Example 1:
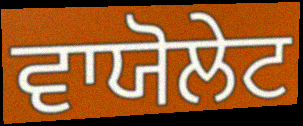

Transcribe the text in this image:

ਵਾਯੋਲੇਟ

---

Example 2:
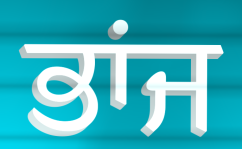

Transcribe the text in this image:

ਭਾਂਜ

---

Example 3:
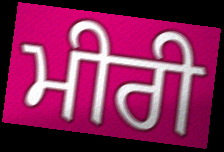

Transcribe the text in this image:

ਮੀਰੀ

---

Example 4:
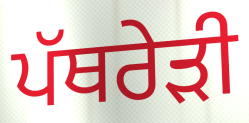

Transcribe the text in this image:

ਪੱਥਰੇੜੀ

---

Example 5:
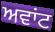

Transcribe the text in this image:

ਅਵਾਂਟ